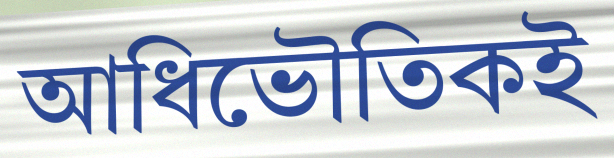
আধিভৌতিকই